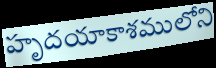
హృదయాకాశములోని